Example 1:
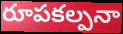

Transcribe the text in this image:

రూపకల్పనా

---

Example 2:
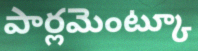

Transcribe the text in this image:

పార్లమెంట్కూ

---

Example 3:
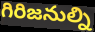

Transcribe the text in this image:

గిరిజనుల్ని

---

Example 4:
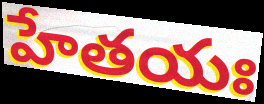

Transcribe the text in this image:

హేతయః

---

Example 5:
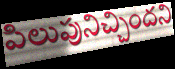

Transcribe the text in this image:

పిలుపునిచ్చిందని